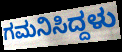
ಗಮನಿಸಿದ್ದಳು